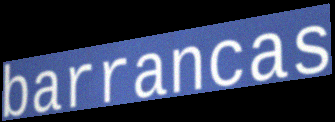
barrancas